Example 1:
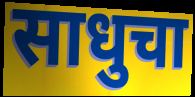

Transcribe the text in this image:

साधुचा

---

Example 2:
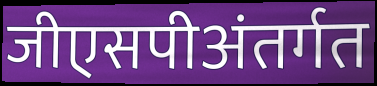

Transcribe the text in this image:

जीएसपीअंतर्गत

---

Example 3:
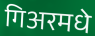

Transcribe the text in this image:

गिअरमधे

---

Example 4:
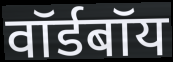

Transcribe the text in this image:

वॉर्डबॉय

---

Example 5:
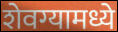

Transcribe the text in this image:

शेवग्यामध्ये